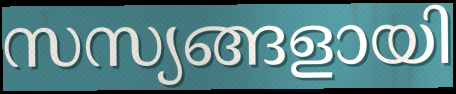
സസ്യങ്ങളായി